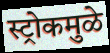
स्ट्रोकमुळे